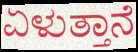
ಏಳುತ್ತಾನೆ